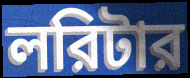
লরিটার